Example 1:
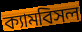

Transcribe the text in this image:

ক্যামবিসল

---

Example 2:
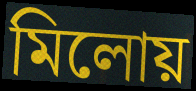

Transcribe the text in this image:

মিলোয়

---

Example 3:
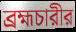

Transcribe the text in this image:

ব্রহ্মচারীর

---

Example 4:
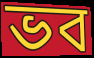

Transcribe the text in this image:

ভব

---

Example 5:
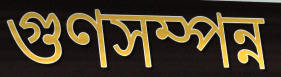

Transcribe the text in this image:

গুণসম্পন্ন